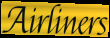
Airliners